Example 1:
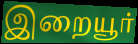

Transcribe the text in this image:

இறையூர்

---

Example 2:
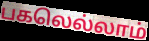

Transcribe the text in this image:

பகலெல்லாம்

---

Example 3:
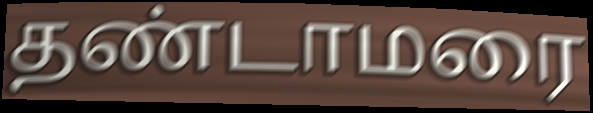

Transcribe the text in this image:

தண்டாமரை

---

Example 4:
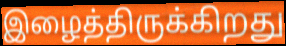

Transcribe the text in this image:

இழைத்திருக்கிறது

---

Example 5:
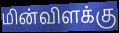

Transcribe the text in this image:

மின்விளக்கு